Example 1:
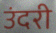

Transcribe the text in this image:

उंदरी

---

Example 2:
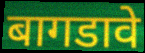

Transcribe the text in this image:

बागडावे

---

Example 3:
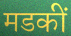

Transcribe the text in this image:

मडकीं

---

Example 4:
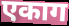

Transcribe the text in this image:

एकाग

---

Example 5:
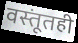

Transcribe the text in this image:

वस्तूंतही